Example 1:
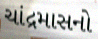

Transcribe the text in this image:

ચાંદ્રમાસનો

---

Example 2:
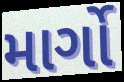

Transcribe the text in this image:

માર્ગો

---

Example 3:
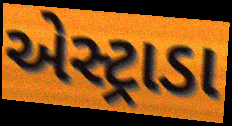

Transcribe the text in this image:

એસ્ટ્રાડા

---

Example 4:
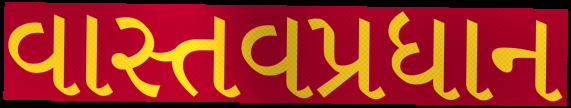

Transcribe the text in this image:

વાસ્તવપ્રધાન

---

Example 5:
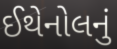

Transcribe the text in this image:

ઈથેનોલનું